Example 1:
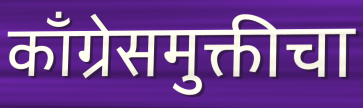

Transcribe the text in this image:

काँग्रेसमुक्तीचा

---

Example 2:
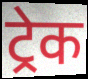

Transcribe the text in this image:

ट्रेक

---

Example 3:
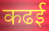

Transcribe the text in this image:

कढई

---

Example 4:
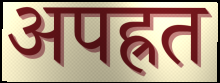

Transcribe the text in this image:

अपह्रत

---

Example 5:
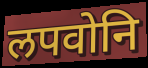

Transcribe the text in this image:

लपवोनि